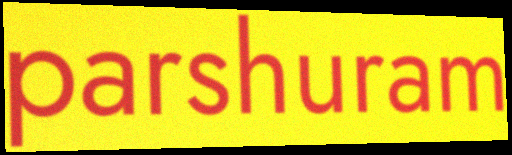
parshuram